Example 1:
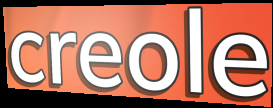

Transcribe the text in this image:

creole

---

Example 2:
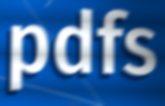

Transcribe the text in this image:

pdfs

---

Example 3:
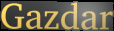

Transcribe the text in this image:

Gazdar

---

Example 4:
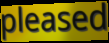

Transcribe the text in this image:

pleased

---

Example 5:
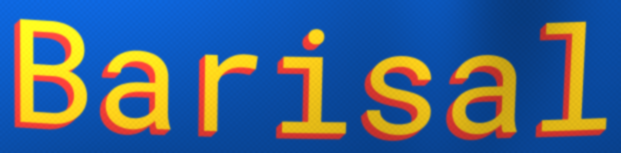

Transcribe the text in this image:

Barisal